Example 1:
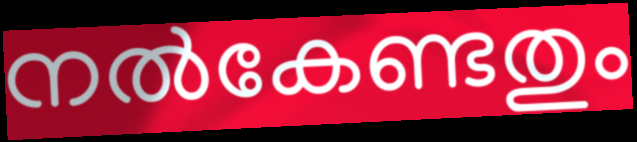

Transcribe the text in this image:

നൽകേണ്ടതും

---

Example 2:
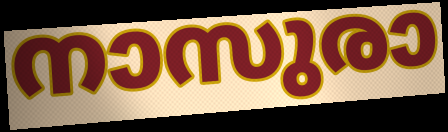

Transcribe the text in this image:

നാസുരാ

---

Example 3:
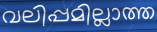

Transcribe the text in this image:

വലിപ്പമില്ലാത്ത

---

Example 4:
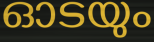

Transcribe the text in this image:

ഓടയും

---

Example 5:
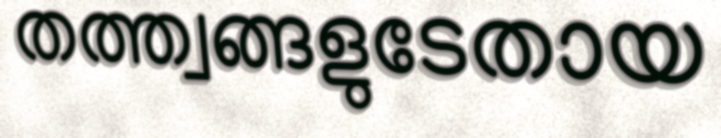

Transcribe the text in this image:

തത്ത്വങ്ങളുടേതായ